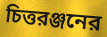
চিত্তরঞ্জনের